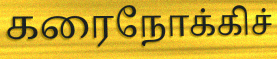
கரைநோக்கிச்